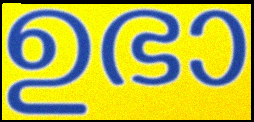
ഉഭാ